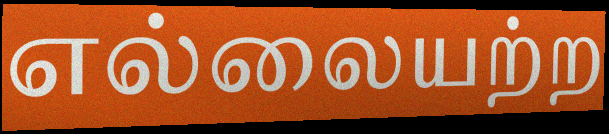
எல்லையற்ற